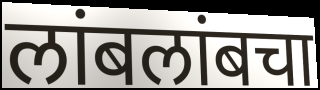
लांबलांबचा